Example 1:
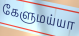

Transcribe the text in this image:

கேளுமய்யா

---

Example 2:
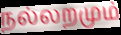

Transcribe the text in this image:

நல்லறமும்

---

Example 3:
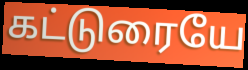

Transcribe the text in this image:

கட்டுரையே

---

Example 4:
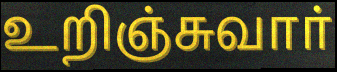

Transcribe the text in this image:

உறிஞ்சுவார்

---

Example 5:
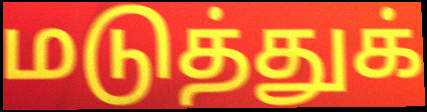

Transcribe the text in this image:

மடுத்துக்